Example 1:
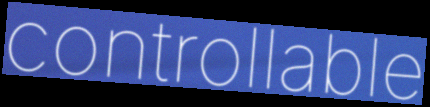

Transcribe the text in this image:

controllable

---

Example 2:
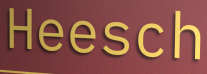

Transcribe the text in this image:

Heesch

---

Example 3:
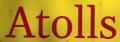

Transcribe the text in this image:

Atolls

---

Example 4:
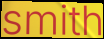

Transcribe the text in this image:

smith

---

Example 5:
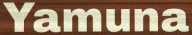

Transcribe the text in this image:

Yamuna